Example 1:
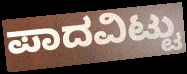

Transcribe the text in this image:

ಪಾದವಿಟ್ಟು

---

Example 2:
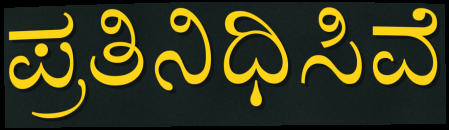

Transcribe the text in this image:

ಪ್ರತಿನಿಧಿಸಿವೆ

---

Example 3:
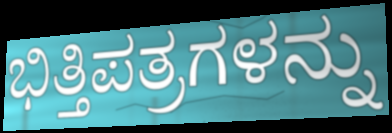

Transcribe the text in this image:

ಭಿತ್ತಿಪತ್ರಗಳನ್ನು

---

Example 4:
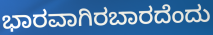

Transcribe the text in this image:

ಭಾರವಾಗಿರಬಾರದೆಂದು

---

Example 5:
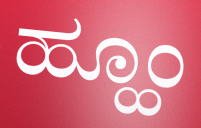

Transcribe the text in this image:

ಹ್ಹೂಂ